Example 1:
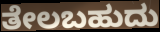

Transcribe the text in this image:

ತೇಲಬಹುದು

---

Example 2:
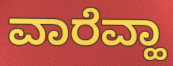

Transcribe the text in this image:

ವಾರೆವ್ಹಾ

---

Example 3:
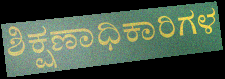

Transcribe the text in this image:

ಶಿಕ್ಷಣಾಧಿಕಾರಿಗಳ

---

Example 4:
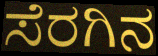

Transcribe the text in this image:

ಸೆರಗಿನ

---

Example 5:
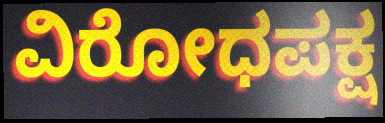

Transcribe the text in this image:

ವಿರೋಧಪಕ್ಷ